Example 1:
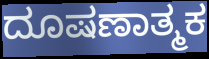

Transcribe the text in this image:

ದೂಷಣಾತ್ಮಕ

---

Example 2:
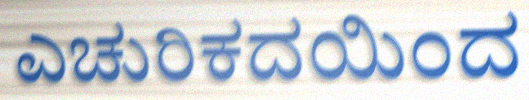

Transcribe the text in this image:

ಎಚುರಿಕದಯಿಂದ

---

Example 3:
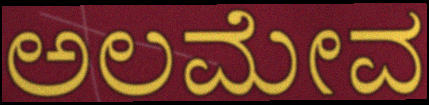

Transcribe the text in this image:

ಅಲಮೇವ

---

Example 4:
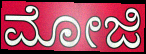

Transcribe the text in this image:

ಮೋಜಿ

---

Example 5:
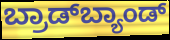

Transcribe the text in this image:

ಬ್ರಾಡ್‌ಬ್ಯಾಂಡ್